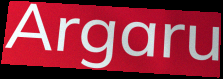
Argaru